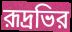
রূদ্রভির